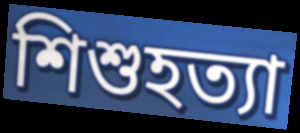
শিশুহত্যা